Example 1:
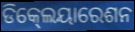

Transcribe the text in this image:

ଡିକ୍‍ଲେୟାରେଶନ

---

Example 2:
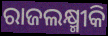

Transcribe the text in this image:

ରାଜଲକ୍ଷ୍ମୀକି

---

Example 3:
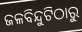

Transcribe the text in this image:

ଜଳବିନ୍ଦୁଟିଠାରୁ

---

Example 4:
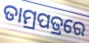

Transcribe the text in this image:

ତାମ୍ରପତ୍ରରେ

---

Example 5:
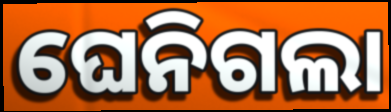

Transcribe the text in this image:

ଘେନିଗଲା